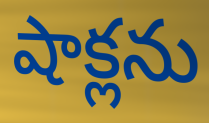
షాక్లను